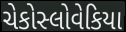
ચેકોસ્લોવેકિયા